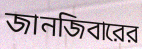
জানজিবারের